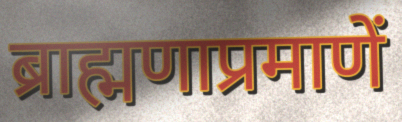
ब्राह्मणाप्रमाणें